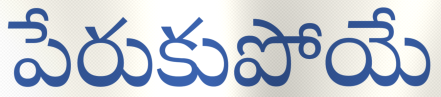
పేరుకుపోయే